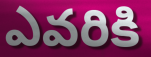
ఎవరికి